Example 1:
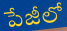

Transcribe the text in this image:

పేజీలో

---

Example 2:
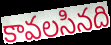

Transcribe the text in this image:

కావలసినది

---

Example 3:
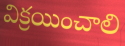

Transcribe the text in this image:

విక్రయించాలి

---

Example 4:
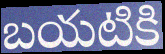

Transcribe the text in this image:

బయటికి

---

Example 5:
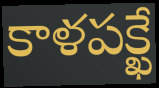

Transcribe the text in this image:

కాళపక్ఖే